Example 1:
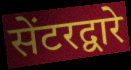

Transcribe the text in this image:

सेंटरद्वारे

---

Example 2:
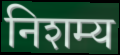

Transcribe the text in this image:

निशम्य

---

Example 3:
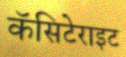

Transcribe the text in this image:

कॅसिटेराइट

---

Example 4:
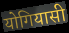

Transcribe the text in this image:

योगियासी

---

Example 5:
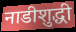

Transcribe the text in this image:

नाडीशुद्धी